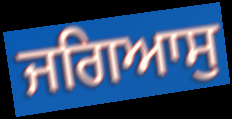
ਜਗਿਆਸੁ